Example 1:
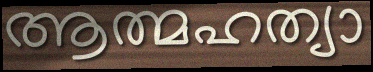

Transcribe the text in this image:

ആത്മഹത്യാ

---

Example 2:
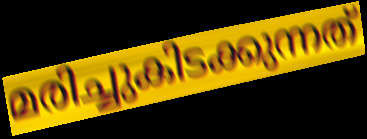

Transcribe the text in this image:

മരിച്ചുകിടക്കുന്നത്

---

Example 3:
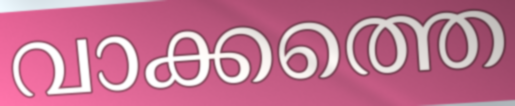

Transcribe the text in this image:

വാക്കത്തെ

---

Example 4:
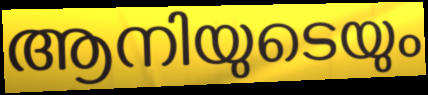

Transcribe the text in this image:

ആനിയുടെയും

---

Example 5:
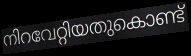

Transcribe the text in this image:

നിറവേറ്റിയതുകൊണ്ട്